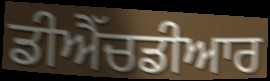
ਡੀਐੱਚਡੀਆਰ